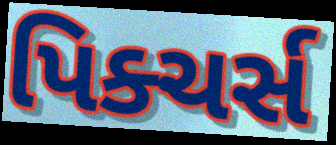
પિક્ચર્સ